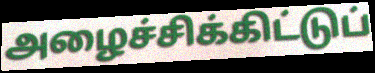
அழைச்சிக்கிட்டுப்